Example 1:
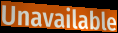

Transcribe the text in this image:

Unavailable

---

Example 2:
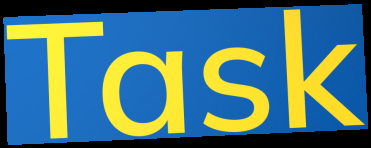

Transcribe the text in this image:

Task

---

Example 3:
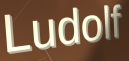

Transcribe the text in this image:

Ludolf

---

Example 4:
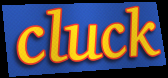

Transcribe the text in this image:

cluck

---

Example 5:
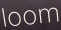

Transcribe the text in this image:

loom